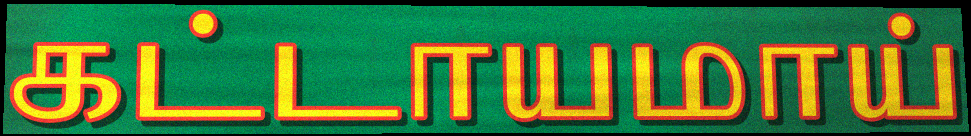
கட்டாயமாய்